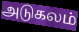
அடுகலம்